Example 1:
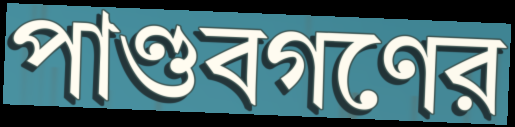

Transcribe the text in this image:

পাণ্ডবগণের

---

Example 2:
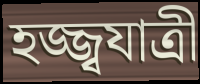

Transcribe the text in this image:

হজ্জ্বযাত্রী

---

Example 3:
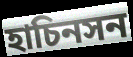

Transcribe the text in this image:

হাচিনসন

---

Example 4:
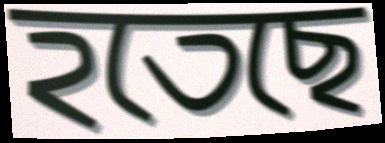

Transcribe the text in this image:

হতেছে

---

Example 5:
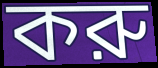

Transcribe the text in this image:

করু